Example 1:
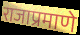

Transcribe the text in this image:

राजाप्रमाणे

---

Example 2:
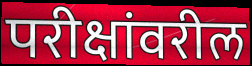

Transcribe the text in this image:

परीक्षांवरील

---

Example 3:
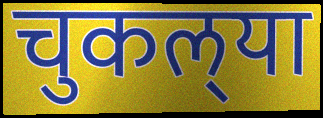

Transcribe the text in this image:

चुकल्या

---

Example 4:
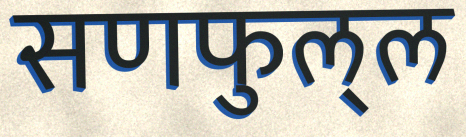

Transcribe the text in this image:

सणफुल्ल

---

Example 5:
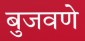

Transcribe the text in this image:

बुजवणे